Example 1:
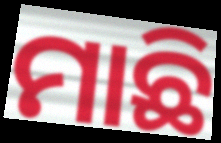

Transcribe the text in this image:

ମାଛି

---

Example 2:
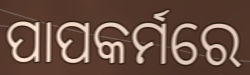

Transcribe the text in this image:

ପାପକର୍ମରେ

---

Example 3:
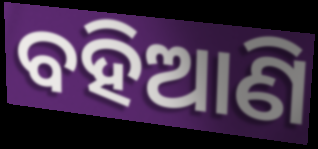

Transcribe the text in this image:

ବହିଆଣି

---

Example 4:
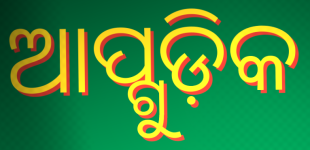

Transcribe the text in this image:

ଆପ୍ଗୁଡ଼ିକ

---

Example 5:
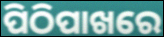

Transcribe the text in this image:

ପିଠିପାଖରେ